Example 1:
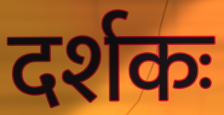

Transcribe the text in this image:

दर्शकः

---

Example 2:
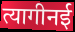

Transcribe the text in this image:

त्यागीनई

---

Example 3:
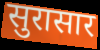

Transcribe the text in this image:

सुरासार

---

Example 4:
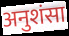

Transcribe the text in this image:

अनुशंसा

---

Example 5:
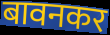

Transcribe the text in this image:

बावनकर